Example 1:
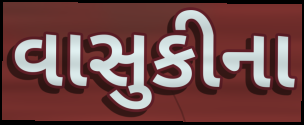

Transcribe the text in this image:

વાસુકીના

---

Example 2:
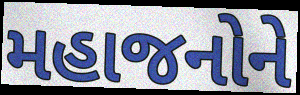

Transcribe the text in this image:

મહાજનોને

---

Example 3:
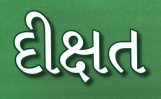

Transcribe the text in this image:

દીક્ષત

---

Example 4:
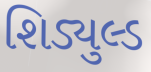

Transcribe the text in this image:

શિડ્યુલ્ડ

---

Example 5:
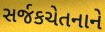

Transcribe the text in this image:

સર્જકચેતનાને